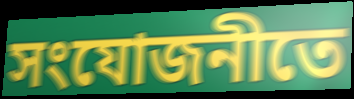
সংযোজনীতে